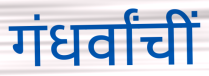
गंधर्वांचीं